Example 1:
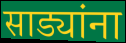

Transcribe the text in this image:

साड्यांना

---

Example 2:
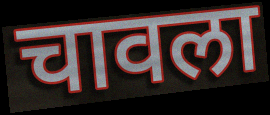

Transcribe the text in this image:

चावला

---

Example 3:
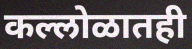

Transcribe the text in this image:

कल्लोळातही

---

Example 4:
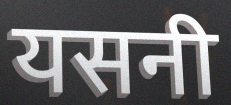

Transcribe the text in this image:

यसनी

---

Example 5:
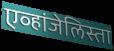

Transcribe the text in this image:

एव्हांजेलिस्ता